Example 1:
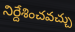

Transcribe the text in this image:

నిర్దేశించవచ్చు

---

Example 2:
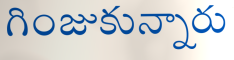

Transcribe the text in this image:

గింజుకున్నారు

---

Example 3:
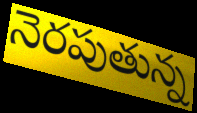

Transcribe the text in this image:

నెరపుతున్న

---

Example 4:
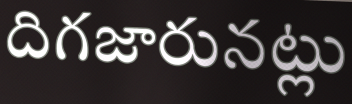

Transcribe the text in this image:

దిగజారునట్లు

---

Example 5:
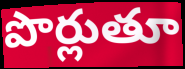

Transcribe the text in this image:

పొర్లుతూ